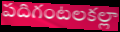
పదిగంటలకల్లా